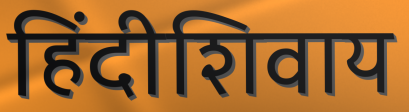
हिंदीशिवाय